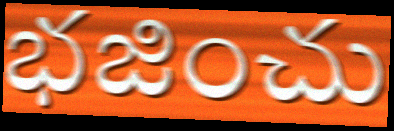
భజించు